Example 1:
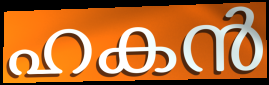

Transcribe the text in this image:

ഹകൻ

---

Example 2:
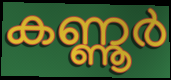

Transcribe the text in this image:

കണ്ണൂർ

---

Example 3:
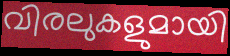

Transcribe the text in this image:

വിരലുകളുമായി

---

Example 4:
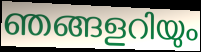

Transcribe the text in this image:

ഞങ്ങളറിയും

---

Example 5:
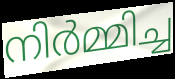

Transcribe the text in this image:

നിർമ്മിച്ച